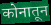
कोनातून